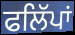
ਫਲਿੱਪਾਂ